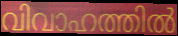
വിവാഹത്തിൽ